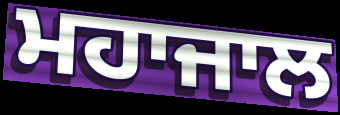
ਮਹਾਜਾਲ